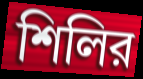
শিলির